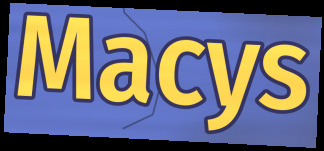
Macys